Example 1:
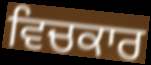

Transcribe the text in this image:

ਵਿਚਕਾਰ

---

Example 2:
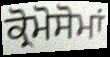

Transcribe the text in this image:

ਕ੍ਰੋਮੋਸੋਮਾਂ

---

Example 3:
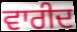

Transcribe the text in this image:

ਵਾਰੀਦ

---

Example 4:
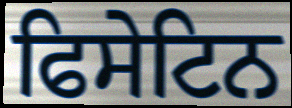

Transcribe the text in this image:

ਫਿਸੇਟਿਨ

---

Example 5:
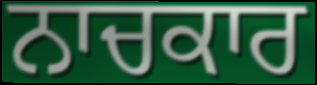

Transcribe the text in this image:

ਨਾਚਕਾਰ